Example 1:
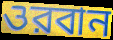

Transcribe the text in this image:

ওরবান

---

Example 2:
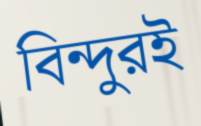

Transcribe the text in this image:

বিন্দুরই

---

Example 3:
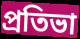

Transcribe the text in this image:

প্রতিভা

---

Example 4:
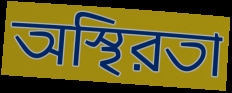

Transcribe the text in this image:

অস্থিরতা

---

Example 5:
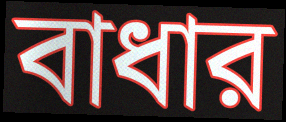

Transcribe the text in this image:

বাধার